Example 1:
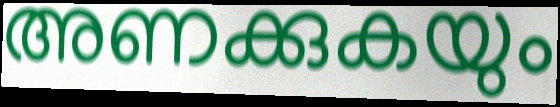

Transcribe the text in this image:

അണക്കുകയും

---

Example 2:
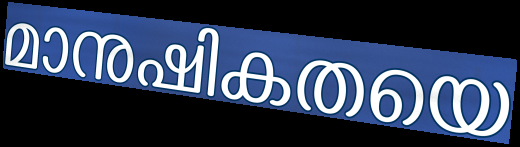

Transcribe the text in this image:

മാനുഷികതയെ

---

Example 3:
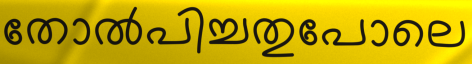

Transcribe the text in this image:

തോൽപിച്ചതുപോലെ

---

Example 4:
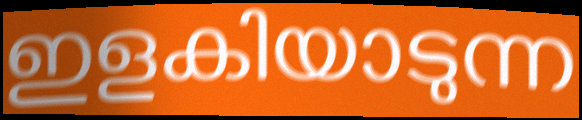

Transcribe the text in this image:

ഇളകിയാടുന്ന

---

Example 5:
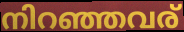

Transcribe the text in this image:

നിറഞ്ഞവര്